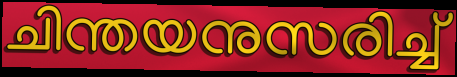
ചിന്തയനുസരിച്ച്